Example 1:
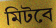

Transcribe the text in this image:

মিটবে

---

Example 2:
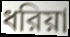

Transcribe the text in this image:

ধরিয়া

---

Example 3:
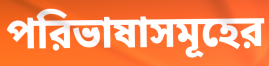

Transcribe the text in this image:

পরিভাষাসমূহের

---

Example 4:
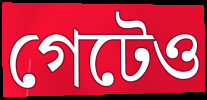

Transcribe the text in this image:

গেটেও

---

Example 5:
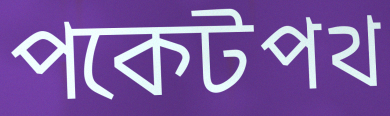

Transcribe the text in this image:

পকেটপথ